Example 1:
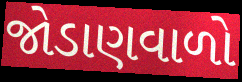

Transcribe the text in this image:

જોડાણવાળો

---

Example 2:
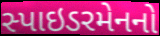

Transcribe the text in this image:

સ્પાઇડરમેનનો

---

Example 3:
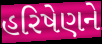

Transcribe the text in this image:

હરિષેણને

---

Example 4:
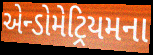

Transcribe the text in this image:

એન્ડોમેટ્રિયમના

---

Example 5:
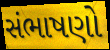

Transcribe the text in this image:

સંભાષણો